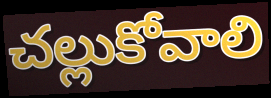
చల్లుకోవాలి